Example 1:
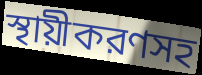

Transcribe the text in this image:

স্থায়ীকরণসহ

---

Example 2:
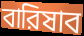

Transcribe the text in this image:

বারিষাব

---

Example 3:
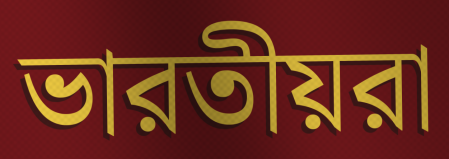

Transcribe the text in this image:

ভারতীয়রা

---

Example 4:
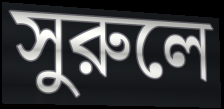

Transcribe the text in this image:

সুরুলে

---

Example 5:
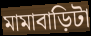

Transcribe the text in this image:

মামাবাড়িটা